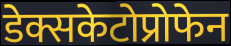
डेक्सकेटोप्रोफेन